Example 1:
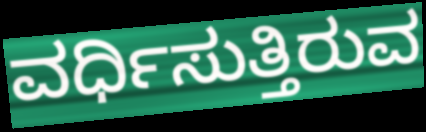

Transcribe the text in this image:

ವರ್ಧಿಸುತ್ತಿರುವ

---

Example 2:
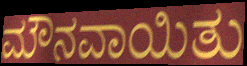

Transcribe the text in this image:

ಮೌನವಾಯಿತು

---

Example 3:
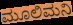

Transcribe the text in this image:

ಮೂಲಿಮನಿ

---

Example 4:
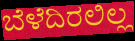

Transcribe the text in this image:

ಬೆಳೆದಿರಲಿಲ್ಲ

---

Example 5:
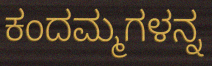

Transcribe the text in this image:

ಕಂದಮ್ಮಗಳನ್ನ